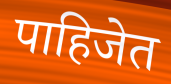
पाहिजेत